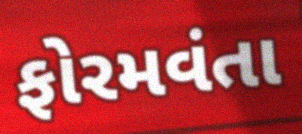
ફોરમવંતા